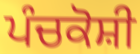
ਪੰਚਕੋਸ਼ੀ